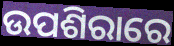
ଉପଶିରାରେ